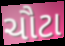
ચૌટા